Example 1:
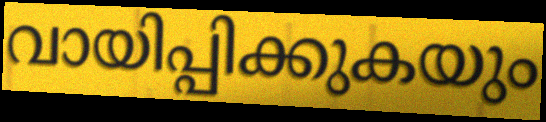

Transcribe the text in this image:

വായിപ്പിക്കുകയും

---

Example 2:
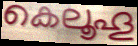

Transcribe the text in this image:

കെലൂഹൂ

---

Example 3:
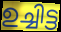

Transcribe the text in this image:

ഉച്ചിട്ട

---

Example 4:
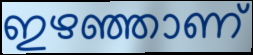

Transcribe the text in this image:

ഇഴഞ്ഞാണ്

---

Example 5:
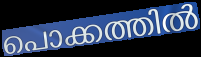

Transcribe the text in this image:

പൊക്കത്തിൽ